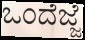
ಒಂದೆಜ್ಜೆ